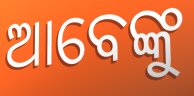
ଆବେଙ୍କୁ